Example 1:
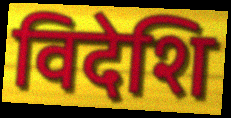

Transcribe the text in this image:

विदेशि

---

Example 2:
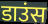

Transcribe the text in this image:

डाउंस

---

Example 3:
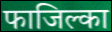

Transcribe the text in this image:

फाजिल्का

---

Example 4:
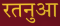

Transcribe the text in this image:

रतनुआ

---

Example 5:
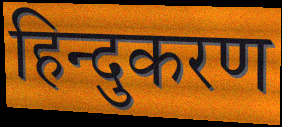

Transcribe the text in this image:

हिन्दुकरण